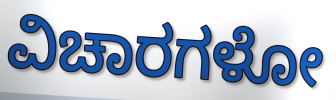
ವಿಚಾರಗಳೋ